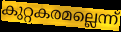
കുറ്റകരമല്ലെന്ന്